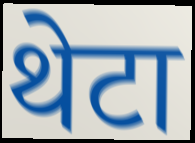
थेटा